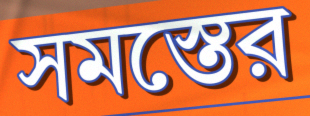
সমস্তের